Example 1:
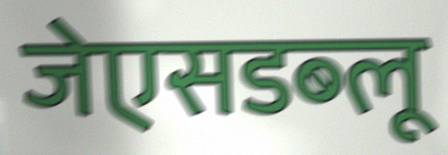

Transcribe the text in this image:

जेएसडब्‍लू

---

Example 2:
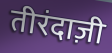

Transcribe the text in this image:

तीरंदाज़ी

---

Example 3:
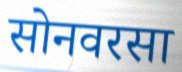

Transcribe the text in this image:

सोनवरसा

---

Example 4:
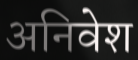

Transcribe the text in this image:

अनिवेश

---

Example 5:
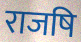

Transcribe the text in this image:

राजषि